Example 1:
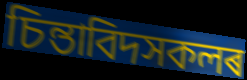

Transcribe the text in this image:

চিন্তাবিদসকলৰ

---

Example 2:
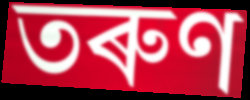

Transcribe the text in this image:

তৰুণ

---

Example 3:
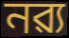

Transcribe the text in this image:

নৱ্য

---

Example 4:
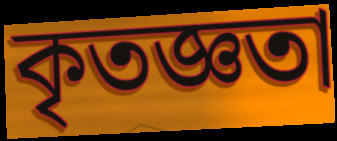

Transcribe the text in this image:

কৃতজ্ঞতা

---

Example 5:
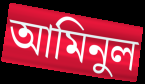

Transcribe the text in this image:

আমিনুল